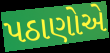
પઠાણોએ